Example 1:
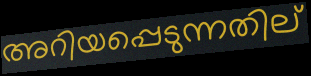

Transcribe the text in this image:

അറിയപ്പെടുന്നതില്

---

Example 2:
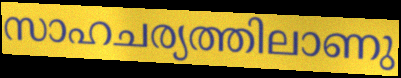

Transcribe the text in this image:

സാഹചര്യത്തിലാണു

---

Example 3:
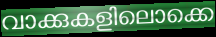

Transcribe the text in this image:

വാക്കുകളിലൊക്കെ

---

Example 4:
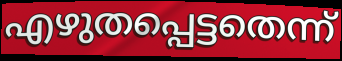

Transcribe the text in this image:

എഴുതപ്പെട്ടതെന്ന്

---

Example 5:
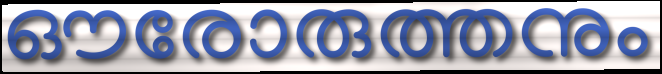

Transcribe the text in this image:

ഔരോരുത്തനും